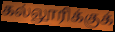
கல்லூரிக்குக்